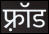
फ़्रॉड